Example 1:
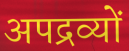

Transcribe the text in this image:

अपद्रव्यों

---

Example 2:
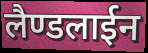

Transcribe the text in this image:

लैण्डलाईन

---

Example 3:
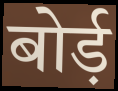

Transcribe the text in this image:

बोर्ड़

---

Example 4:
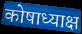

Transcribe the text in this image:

कोषाध्याक्ष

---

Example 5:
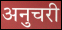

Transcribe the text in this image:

अनुचरी